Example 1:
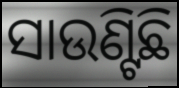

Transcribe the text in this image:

ସାଉଣ୍ଟିଛି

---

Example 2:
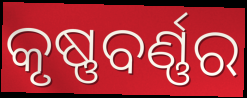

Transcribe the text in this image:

କୃଷ୍ଣବର୍ଣ୍ଣର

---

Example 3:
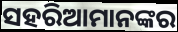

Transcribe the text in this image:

ସହରିଆମାନଙ୍କର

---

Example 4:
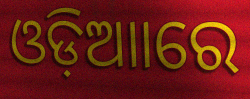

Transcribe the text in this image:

ଓଡ଼ିଆାରେ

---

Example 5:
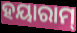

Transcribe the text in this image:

ହୟାରାମ୍